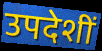
उपदेशीं